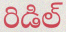
రిడిల్